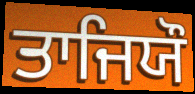
ਤਾਜਿਯੌ